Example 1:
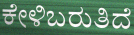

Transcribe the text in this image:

ಕೇಳಿಬರುತಿದೆ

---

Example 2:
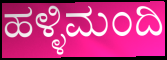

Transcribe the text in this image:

ಹಳ್ಳಿಮಂದಿ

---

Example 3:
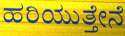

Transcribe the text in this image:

ಹರಿಯುತ್ತೇನೆ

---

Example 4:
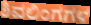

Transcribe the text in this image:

ಶಿವಲಿಂಗಗಳ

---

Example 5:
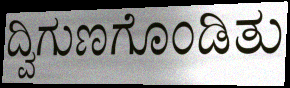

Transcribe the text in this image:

ದ್ವಿಗುಣಗೊಂಡಿತು